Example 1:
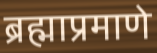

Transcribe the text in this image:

ब्रह्माप्रमाणे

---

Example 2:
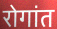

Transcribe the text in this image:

रोगांत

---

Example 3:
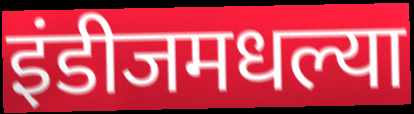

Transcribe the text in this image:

इंडीजमधल्या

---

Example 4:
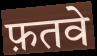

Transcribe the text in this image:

फ़तवे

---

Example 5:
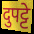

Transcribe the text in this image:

दुपट्टे